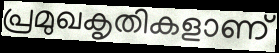
പ്രമുഖകൃതികളാണ്